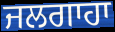
ਜਲਗਾਹਾ